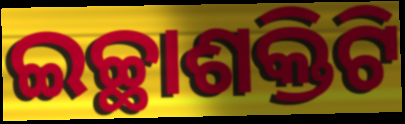
ଇଚ୍ଛାଶକ୍ତିଟି